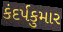
કંદર્પકુમાર